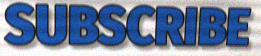
SUBSCRIBE